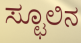
ಸ್ಟೂಲಿನ